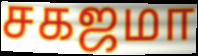
சகஜமா